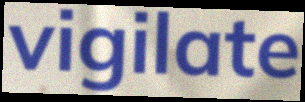
vigilate